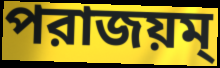
পরাজয়ম্